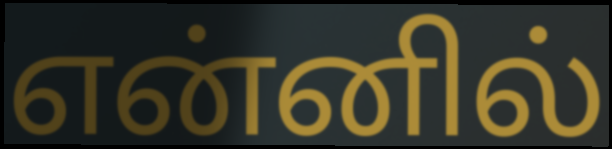
என்னில்